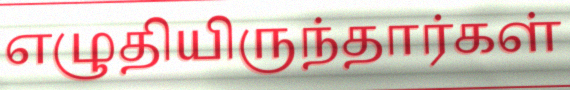
எழுதியிருந்தார்கள்